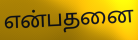
என்பதனை